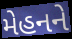
મેહનને